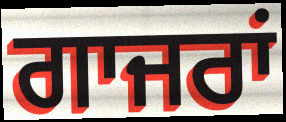
ਗਾਜਰਾਂ